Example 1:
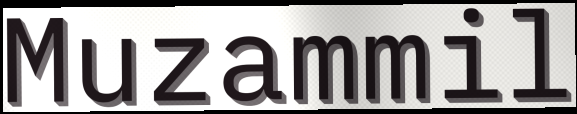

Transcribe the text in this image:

Muzammil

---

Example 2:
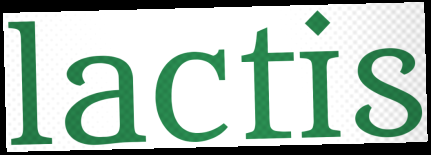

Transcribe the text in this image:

lactis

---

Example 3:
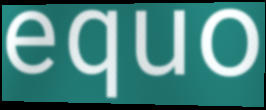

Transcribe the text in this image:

equo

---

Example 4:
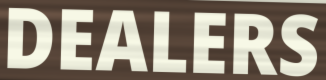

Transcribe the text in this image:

DEALERS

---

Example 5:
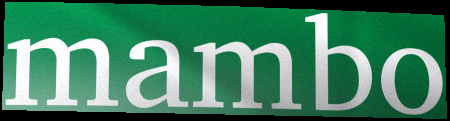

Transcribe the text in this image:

mambo